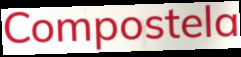
Compostela